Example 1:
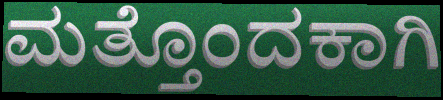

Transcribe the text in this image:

ಮತ್ತೊಂದಕಾಗಿ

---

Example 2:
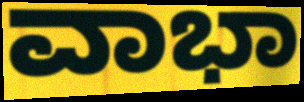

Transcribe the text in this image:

ವಾಭಾ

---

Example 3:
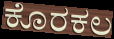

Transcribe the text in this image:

ಕೊರಕಲ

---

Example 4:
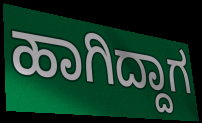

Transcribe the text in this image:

ಹಾಗಿದ್ದಾಗ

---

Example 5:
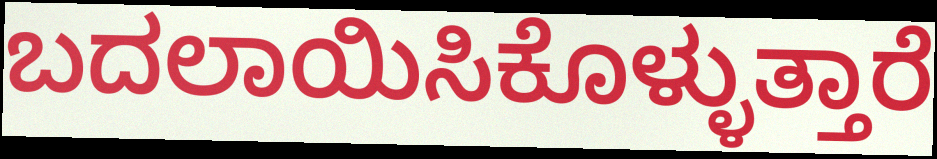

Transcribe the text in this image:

ಬದಲಾಯಿಸಿಕೊಳ್ಳುತ್ತಾರೆ